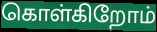
கொள்கிறோம்